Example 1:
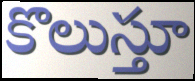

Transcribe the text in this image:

కొలుస్తూ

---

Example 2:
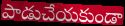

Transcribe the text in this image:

పాడుచేయకుండా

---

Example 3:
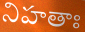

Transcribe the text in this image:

నిహతాః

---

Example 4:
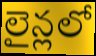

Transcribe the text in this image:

లైన్లలో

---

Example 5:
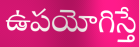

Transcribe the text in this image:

ఉపయోగిస్తే